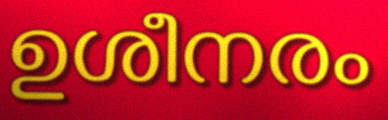
ഉശീനരം